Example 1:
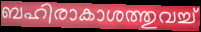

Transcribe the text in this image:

ബഹിരാകാശത്തുവച്ച്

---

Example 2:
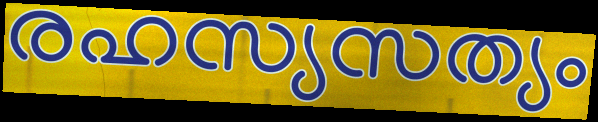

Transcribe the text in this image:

രഹസ്യസത്യം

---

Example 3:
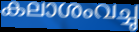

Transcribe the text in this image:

കലാശംവച്ചു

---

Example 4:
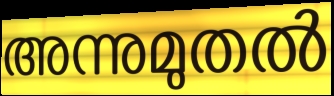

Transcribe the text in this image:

അന്നുമുതൽ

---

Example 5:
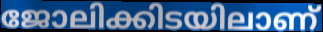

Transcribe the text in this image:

ജോലിക്കിടയിലാണ്